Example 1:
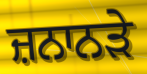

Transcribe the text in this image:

ਜ਼ਨਾਨੜੇ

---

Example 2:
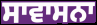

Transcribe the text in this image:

ਸਾਵਾਸਨਾ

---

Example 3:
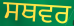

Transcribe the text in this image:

ਸਥਵਰ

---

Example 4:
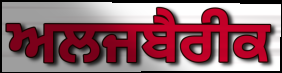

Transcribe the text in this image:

ਅਲਜਬੈਰੀਕ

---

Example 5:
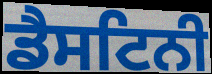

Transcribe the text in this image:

ਡੈਸਟਿਨੀ